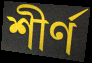
শীর্ণ